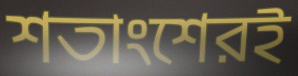
শতাংশেরই